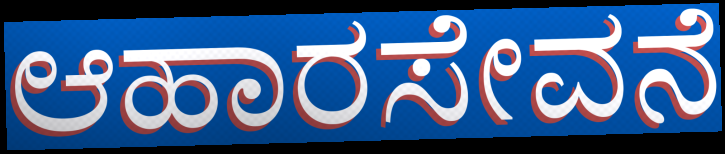
ಆಹಾರಸೇವನೆ